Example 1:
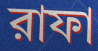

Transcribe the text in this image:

রাফা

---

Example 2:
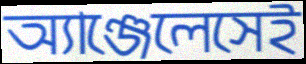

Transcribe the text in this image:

অ্যাঞ্জেলেসেই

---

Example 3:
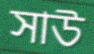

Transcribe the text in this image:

সাউ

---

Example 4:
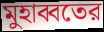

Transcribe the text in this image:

মুহাব্বতের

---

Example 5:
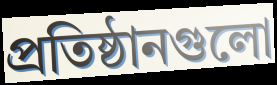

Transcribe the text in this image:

প্রতিষ্ঠানগুলো